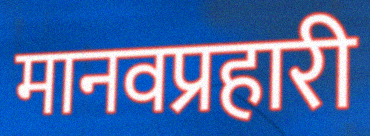
मानवप्रहारी